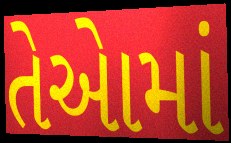
તેએામાં